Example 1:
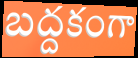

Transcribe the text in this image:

బద్దకంగా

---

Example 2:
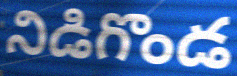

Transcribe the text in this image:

నిడిగొండ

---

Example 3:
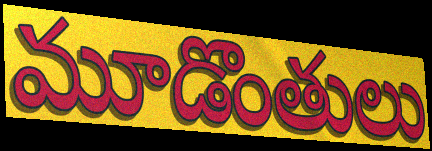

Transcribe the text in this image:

మూడొంతులు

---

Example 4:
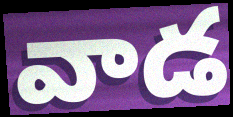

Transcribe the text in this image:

వాడ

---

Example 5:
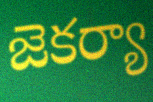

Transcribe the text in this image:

జెకర్యా